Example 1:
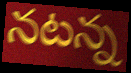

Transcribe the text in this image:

నటన్న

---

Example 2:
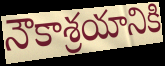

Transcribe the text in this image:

నౌకాశ్రయానికి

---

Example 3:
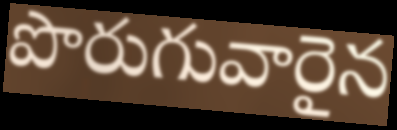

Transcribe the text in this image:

పొరుగువారైన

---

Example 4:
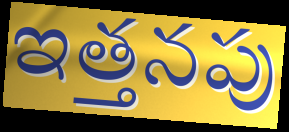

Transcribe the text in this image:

ఇత్తనపు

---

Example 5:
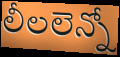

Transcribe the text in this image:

లీలలెన్నో